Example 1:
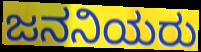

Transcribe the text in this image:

ಜನನಿಯರು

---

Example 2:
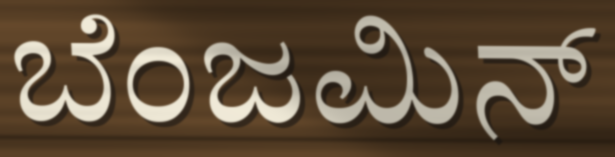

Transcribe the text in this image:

ಬೆಂಜಮಿನ್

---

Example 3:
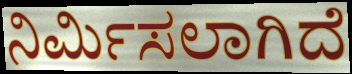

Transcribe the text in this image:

ನಿರ್ಮಿಸಲಾಗಿದೆ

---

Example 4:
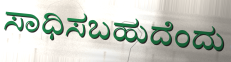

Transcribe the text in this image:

ಸಾಧಿಸಬಹುದೆಂದು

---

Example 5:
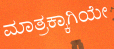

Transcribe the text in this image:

ಮಾತ್ರಕ್ಕಾಗಿಯೇ